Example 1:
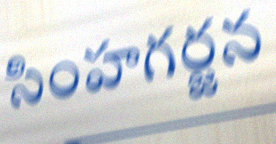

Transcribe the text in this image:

సింహగర్జన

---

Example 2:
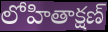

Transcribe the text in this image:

లోహితాక్షణ్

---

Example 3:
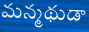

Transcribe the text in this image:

మన్మథుడా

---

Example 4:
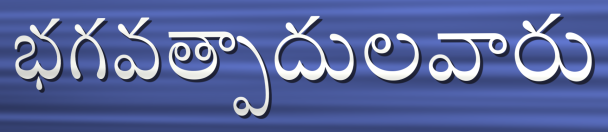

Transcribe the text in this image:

భగవత్పాదులవారు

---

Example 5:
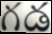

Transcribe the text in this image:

గడ